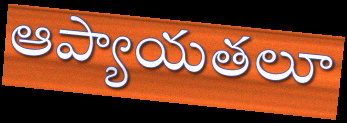
ఆప్యాయతలూ